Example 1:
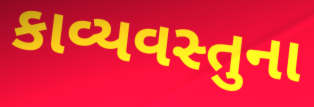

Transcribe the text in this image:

કાવ્યવસ્તુના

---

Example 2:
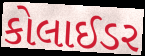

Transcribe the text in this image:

કોલાઈડર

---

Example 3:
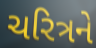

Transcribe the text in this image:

ચરિત્રને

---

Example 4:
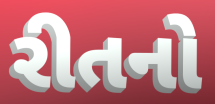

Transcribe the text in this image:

રીતનો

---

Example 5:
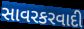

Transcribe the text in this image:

સાવરકરવાદી